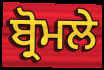
ਬ੍ਰੋਮਲੇ